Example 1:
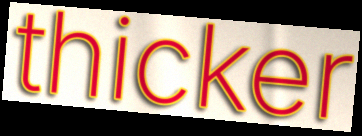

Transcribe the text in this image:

thicker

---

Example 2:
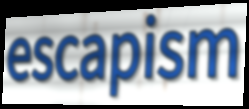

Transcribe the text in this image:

escapism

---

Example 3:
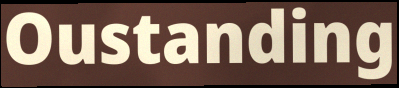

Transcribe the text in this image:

Oustanding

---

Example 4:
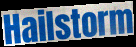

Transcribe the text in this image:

Hailstorm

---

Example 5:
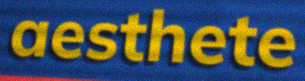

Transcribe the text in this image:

aesthete